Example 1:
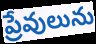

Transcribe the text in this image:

ప్రేవులును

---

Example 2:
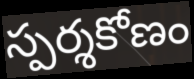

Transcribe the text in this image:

స్పర్శకోణం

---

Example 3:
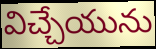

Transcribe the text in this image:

విచ్చేయును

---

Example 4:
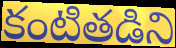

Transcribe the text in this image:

కంటితడిని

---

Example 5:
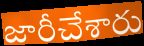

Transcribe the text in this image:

జారీచేశారు